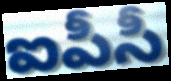
ఐపీసీ